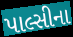
પાલ્સીના